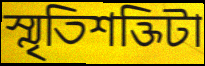
স্মৃতিশক্তিটা